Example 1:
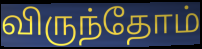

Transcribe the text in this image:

விருந்தோம்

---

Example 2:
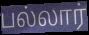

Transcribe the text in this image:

பல்லார்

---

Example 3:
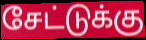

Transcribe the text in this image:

சேட்டுக்கு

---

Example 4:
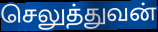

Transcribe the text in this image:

செலுத்துவன்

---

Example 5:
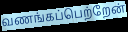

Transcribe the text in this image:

வணங்கப்பெற்றேன்